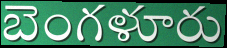
బెంగళూరు